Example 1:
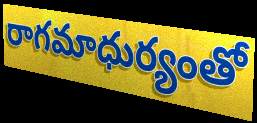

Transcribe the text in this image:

రాగమాధుర్యంతో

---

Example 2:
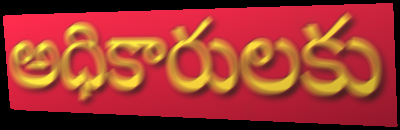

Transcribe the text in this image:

అధికారులకు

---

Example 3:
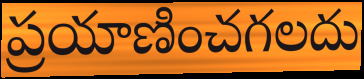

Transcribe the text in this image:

ప్రయాణించగలదు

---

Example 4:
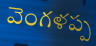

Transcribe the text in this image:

వెంగళప్ప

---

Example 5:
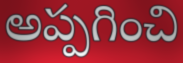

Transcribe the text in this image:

అప్పగించి